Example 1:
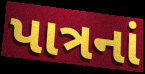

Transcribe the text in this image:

પાત્રનાં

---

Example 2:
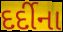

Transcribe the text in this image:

દર્દીના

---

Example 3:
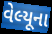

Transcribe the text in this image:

વેલ્યૂના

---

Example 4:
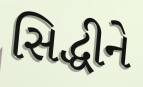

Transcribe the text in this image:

સિદ્ધીને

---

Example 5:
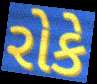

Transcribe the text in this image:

રોકે